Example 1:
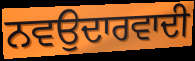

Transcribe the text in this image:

ਨਵਉਦਾਰਵਾਦੀ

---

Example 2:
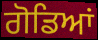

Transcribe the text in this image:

ਗੋਡਿਆਂ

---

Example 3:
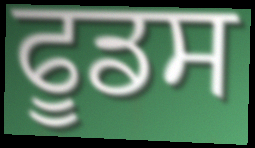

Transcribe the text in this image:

ਫੂਡਸ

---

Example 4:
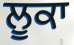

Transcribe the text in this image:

ਲੂਕਾ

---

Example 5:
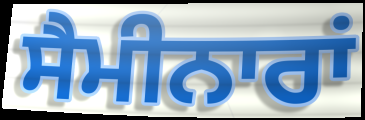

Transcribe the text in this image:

ਸੈਮੀਨਾਰਾਂ